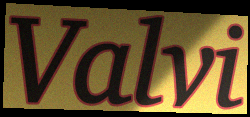
Valvi